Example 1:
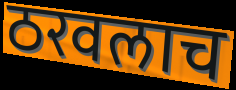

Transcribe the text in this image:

ठरवलाच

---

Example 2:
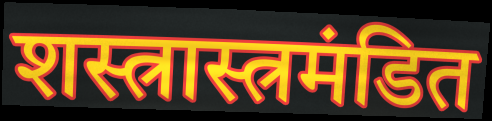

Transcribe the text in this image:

शस्त्रास्त्रमंडित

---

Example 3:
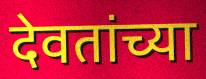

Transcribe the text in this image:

देवतांच्या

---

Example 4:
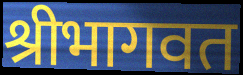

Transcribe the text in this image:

श्रीभागवत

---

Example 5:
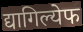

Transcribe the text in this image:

द्यागिल्येफ